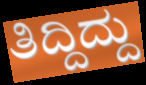
ತಿದ್ದಿದ್ದು